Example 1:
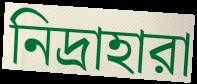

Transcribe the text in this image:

নিদ্রাহারা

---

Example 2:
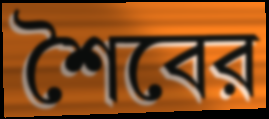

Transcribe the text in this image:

শৈবের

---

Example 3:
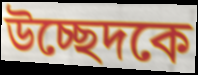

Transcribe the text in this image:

উচ্ছেদকে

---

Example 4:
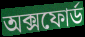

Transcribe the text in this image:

অক্সফোর্ড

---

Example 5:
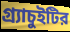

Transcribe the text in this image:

গ্র্যাচুইটির